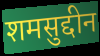
शमसुद्दीन